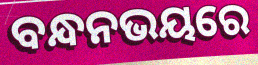
ବନ୍ଧନଭୟରେ